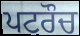
ਪਟਰੌਚ